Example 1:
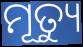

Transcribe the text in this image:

ମୂତ୍ୟୁ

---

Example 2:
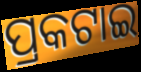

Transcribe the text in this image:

ପ୍ରକଟାଇ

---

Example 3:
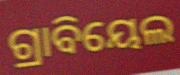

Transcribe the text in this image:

ଗ୍ରାବିୟେଲ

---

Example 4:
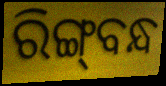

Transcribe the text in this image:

ରିଙ୍ଗ୍‌ବନ୍ଧ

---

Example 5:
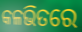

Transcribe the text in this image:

କଳଭିତରେ